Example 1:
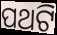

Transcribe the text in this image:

ପଥଟି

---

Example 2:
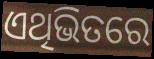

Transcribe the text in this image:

ଏଥିଭିତରେ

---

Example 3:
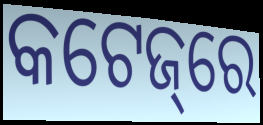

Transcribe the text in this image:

କଟେଜ୍‌ରେ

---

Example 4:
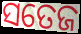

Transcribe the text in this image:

ସତେଜ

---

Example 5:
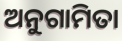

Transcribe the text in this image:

ଅନୁଗାମିତା